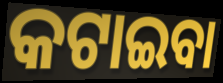
କଟାଇବା